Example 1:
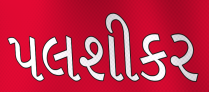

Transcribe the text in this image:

પલશીકર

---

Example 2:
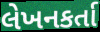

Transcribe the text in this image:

લેખનકર્તા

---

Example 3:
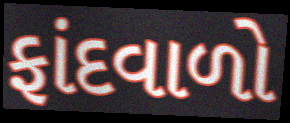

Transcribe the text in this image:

ફાંદવાળો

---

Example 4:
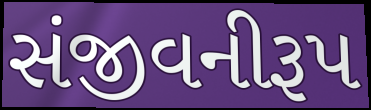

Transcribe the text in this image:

સંજીવનીરૂપ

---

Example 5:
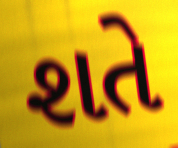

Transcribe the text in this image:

શતે